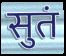
सुतं